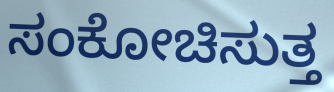
ಸಂಕೋಚಿಸುತ್ತ